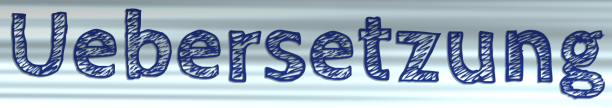
Uebersetzung